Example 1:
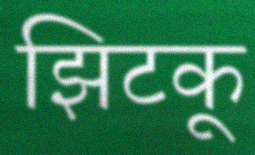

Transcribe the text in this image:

झिटकू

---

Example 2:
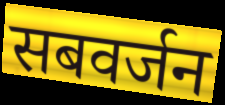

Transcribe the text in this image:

सबवर्जन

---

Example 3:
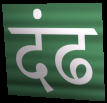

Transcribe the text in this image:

दंढ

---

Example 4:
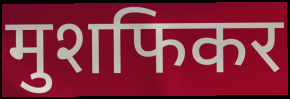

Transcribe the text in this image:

मुशफिकर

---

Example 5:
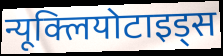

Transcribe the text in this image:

न्यूक्लियोटाइड्स